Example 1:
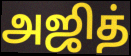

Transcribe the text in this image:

அஜித்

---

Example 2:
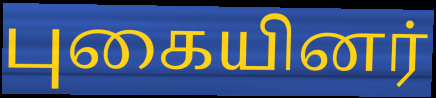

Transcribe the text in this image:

புகையினர்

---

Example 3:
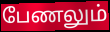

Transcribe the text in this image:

பேணலும்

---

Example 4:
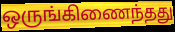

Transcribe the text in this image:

ஒருங்கிணைந்தது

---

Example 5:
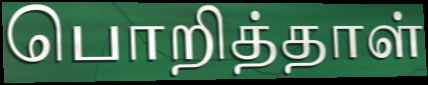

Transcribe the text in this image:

பொறித்தாள்